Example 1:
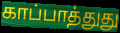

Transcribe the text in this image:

காப்பாத்துது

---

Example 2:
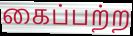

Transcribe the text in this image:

கைப்பற்ற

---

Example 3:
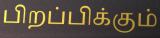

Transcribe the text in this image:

பிறப்பிக்கும்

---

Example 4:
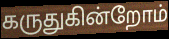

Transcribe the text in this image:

கருதுகின்றோம்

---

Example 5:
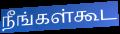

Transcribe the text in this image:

நீங்கள்கூட